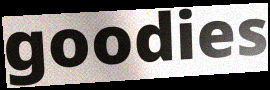
goodies